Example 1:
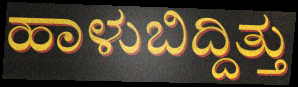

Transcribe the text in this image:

ಹಾಳುಬಿದ್ದಿತ್ತು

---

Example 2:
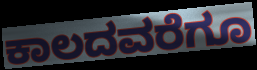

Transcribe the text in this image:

ಕಾಲದವರೆಗೂ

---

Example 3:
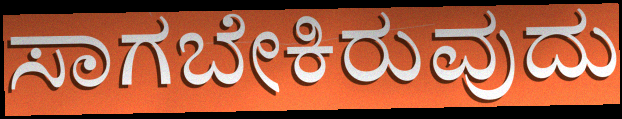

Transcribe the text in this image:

ಸಾಗಬೇಕಿರುವುದು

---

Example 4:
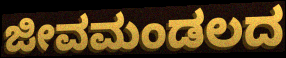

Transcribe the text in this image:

ಜೀವಮಂಡಲದ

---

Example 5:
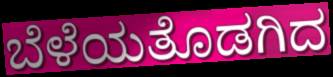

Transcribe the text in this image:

ಬೆಳೆಯತೊಡಗಿದ